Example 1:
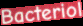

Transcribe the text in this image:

Bacteriol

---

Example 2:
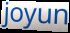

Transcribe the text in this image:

joyun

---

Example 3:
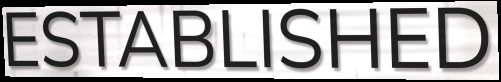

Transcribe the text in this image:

ESTABLISHED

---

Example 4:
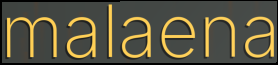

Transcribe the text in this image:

malaena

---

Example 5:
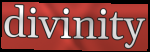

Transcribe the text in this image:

divinity